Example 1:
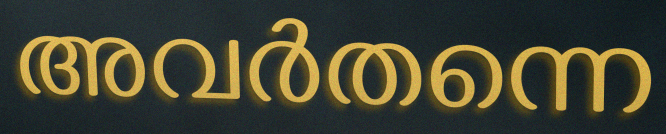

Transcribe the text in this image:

അവർതന്നെ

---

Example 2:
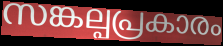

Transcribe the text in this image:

സങ്കല്പപ്രകാരം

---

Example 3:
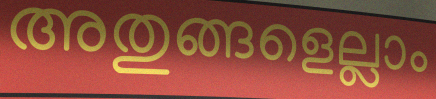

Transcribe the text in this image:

അതുങ്ങളെല്ലാം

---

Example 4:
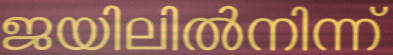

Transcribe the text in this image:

ജയിലിൽനിന്ന്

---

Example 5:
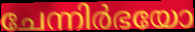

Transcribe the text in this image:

ചേന്നിർഭയോ